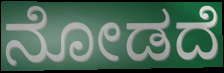
ನೋಡದೆ